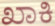
ಖಾಕಿ